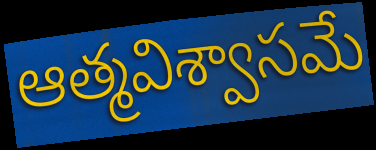
ఆత్మవిశ్వాసమే